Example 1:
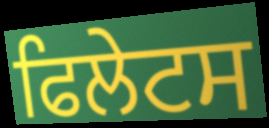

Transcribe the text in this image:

ਫਿਲੇਟਸ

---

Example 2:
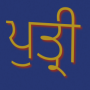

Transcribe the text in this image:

ਪੁਤ੍ਰੀ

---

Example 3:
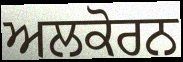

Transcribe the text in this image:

ਅਲਕੋਰਨ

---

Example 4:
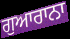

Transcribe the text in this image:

ਗੁਆਰਾਨਾ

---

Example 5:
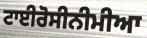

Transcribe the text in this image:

ਟਾਈਰੋਸੀਨੀਮੀਆ